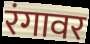
रंगावर